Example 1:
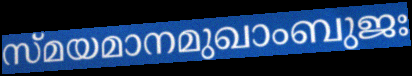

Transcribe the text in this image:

സ്മയമാനമുഖാംബുജഃ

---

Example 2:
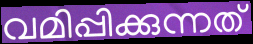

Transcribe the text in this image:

വമിപ്പിക്കുന്നത്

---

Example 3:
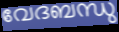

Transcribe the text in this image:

വേദബന്ധു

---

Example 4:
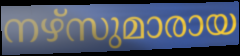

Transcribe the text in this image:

നഴ്സുമാരായ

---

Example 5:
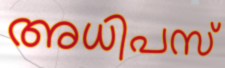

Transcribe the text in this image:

അധിപസ്